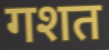
गशत